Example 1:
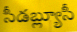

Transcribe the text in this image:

సీడబ్ల్యూసీ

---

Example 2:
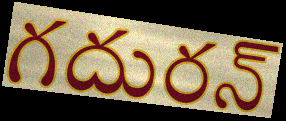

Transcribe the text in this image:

గదురన్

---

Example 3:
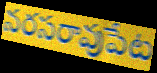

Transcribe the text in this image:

నరసరావుపేట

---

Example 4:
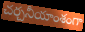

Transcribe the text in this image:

చర్చనీయాంశంగా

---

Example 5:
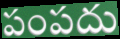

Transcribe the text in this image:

పంపదు